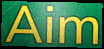
Aim